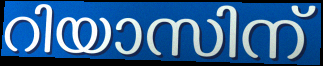
റിയാസിന്